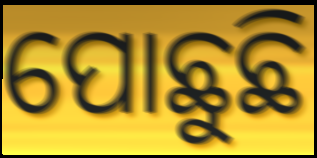
ପୋଛୁଛି